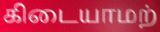
கிடையாமற்